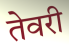
तेवरी